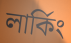
লার্কিং